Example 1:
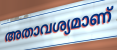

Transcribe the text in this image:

അതാവശ്യമാണ്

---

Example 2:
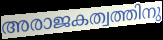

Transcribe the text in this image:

അരാജകത്വത്തിനു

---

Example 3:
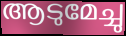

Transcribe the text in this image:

ആടുമേച്ചു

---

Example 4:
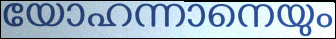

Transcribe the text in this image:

യോഹന്നാനെയും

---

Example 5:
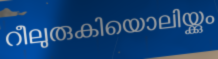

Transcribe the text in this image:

റീലുരുകിയൊലിയ്ക്കും